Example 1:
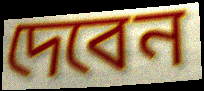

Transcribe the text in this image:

দেবেন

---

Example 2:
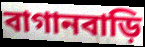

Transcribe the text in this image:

বাগানবাড়ি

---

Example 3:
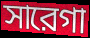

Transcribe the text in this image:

সারেগা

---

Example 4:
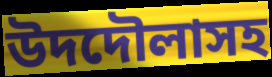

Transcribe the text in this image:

উদদৌলাসহ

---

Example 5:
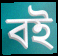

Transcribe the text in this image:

বই